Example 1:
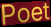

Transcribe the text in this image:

Poet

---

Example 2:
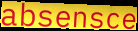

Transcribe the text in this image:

absensce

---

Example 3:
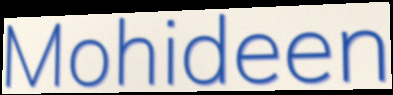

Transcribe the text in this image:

Mohideen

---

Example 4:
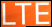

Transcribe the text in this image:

LTE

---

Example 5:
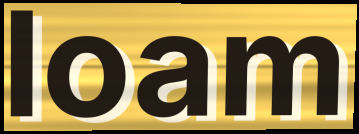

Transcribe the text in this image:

loam